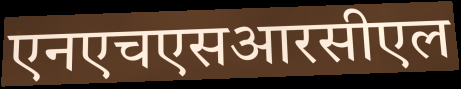
एनएचएसआरसीएल